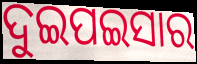
ଦୁଇପଇସାର